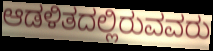
ಆಡಳಿತದಲ್ಲಿರುವವರು